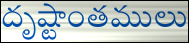
దృష్టాంతములు